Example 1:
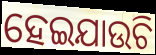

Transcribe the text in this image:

ହେଇଯାଉଚି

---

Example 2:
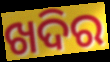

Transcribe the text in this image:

ଖଦିର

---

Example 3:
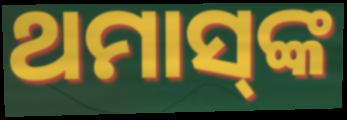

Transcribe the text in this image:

ଥମାସ୍‌ଙ୍କ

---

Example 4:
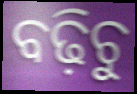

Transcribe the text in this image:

ବଢ଼ିଚୁ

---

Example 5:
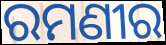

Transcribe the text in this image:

ରମଣୀର